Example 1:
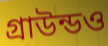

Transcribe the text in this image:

গ্রাউন্ডও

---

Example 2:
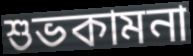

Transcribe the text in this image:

শুভকামনা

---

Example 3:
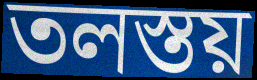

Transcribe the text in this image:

তলস্তয়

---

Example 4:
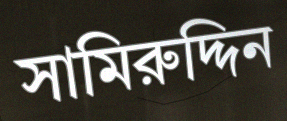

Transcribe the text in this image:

সামিরুদ্দিন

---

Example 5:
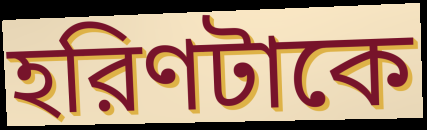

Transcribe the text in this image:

হরিণটাকে